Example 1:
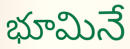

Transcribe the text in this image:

భూమినే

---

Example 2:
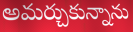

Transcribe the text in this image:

అమర్చుకున్నాను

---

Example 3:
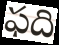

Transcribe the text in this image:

ఫది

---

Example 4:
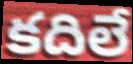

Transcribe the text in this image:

కదిలే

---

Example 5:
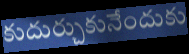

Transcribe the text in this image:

కుదుర్చుకునేందుకు